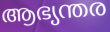
ആഭ്യന്തര